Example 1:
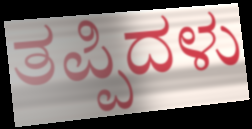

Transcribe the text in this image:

ತಪ್ಪಿದಳು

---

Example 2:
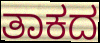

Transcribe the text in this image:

ತಾಕದ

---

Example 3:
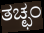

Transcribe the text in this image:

ತಚ್ಛಂ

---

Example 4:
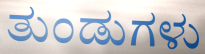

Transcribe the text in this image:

ತುಂಡುಗಳು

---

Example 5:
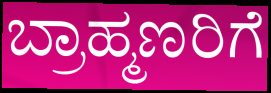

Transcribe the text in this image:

ಬ್ರಾಹ್ಮಣರಿಗೆ